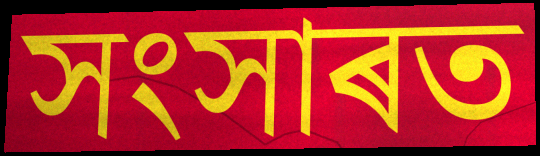
সংসাৰত